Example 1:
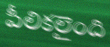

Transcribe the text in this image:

పీలికలైంది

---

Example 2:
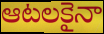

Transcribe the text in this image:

ఆటలకైనా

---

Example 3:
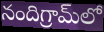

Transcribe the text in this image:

నందిగ్రామ్‌లో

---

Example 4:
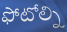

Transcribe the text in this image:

ఫోటోల్ని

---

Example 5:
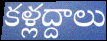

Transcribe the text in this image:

కళ్లద్దాలు